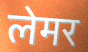
लेमर